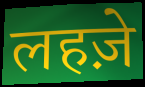
लहज़े